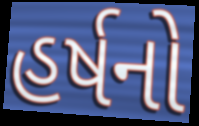
હર્ષનો